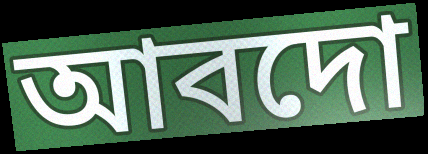
আবদো